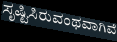
ಸೃಷ್ಟಿಸಿರುವಂಥವಾಗಿವೆ